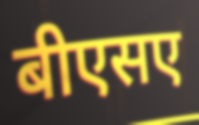
बीएसए